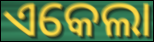
ଏକେଲା